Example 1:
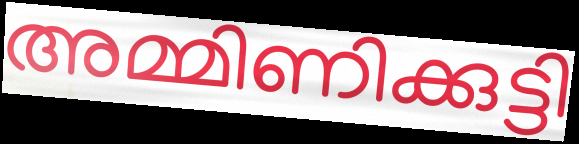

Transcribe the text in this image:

അമ്മിണിക്കുട്ടി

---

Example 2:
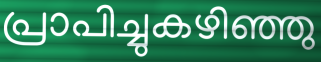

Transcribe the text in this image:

പ്രാപിച്ചുകഴിഞ്ഞു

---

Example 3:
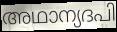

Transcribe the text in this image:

അഥാന്യദപി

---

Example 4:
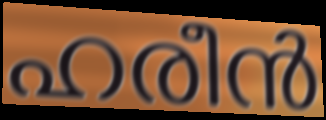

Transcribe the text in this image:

ഹരീൻ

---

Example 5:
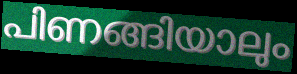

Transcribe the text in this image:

പിണങ്ങിയാലും